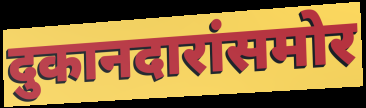
दुकानदारांसमोर